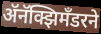
ॲनॅक्झिमँडरने